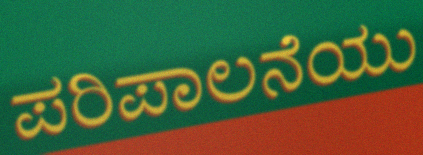
ಪರಿಪಾಲನೆಯು